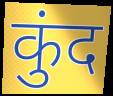
कुंद